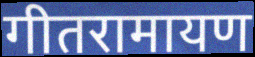
गीतरामायण